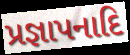
પ્રજ્ઞાપનાદિ